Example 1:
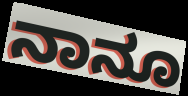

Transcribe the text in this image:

ನಾನೂ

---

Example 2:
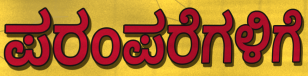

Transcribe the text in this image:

ಪರಂಪರೆಗಳಿಗೆ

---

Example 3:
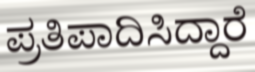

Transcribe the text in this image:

ಪ್ರತಿಪಾದಿಸಿದ್ದಾರೆ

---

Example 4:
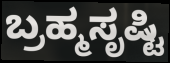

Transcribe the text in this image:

ಬ್ರಹ್ಮಸೃಷ್ಟಿ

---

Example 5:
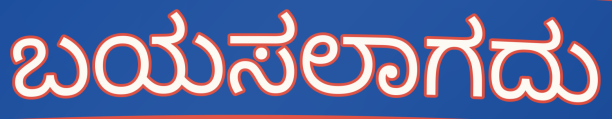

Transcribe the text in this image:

ಬಯಸಲಾಗದು